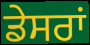
ਡੇਸਰਾਂ